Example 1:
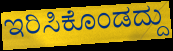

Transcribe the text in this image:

ಇರಿಸಿಕೊಂಡದ್ದು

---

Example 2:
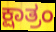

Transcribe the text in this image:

ಕ್ಷಾತ್ರಂ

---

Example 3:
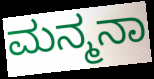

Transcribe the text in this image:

ಮನ್ಮನಾ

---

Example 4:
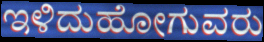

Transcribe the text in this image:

ಇಳಿದುಹೋಗುವರು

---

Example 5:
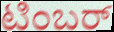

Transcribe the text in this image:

ಟಿಂಬರ್